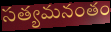
సత్యమనంతం